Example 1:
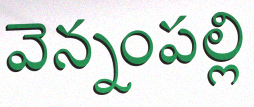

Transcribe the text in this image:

వెన్నంపల్లి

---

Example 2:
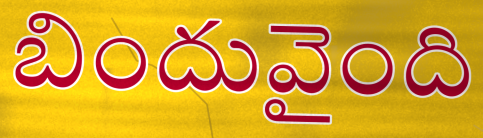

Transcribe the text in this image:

బిందువైంది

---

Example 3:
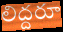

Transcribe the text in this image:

లిద్దరూ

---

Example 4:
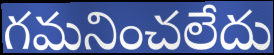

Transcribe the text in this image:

గమనించలేదు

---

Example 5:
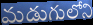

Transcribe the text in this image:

మడుగులోని